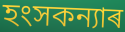
হংসকন্যাৰ